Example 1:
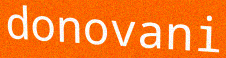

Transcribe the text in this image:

donovani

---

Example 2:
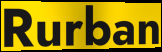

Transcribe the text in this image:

Rurban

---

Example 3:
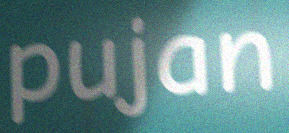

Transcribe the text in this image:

pujan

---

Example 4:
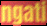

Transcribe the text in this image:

ngati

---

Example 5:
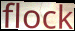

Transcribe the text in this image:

flock